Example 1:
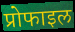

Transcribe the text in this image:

प्रोफाइल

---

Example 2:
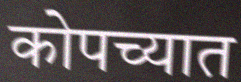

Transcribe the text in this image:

कोपच्यात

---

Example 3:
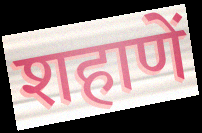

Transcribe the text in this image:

शहाणें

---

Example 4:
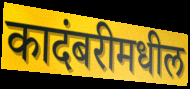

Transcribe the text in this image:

कादंबरीमधील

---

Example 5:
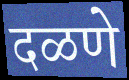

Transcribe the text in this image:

दळणे